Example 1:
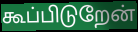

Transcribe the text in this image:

கூப்பிடுறேன்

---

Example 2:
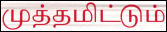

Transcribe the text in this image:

முத்தமிட்டும்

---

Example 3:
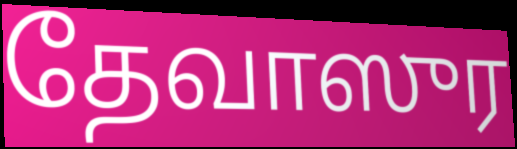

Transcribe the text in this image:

தேவாஸுர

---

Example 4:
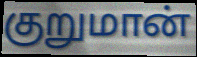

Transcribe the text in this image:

குறுமான்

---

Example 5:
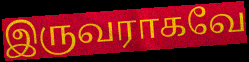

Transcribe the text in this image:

இருவராகவே